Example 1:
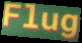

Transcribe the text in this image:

Flug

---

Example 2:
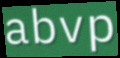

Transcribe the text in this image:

abvp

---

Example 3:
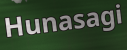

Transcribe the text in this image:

Hunasagi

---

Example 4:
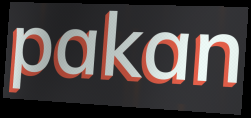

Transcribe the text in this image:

pakan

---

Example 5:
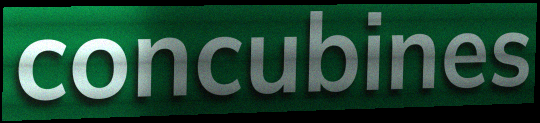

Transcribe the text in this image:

concubines